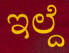
ಇಲ್ದೆ